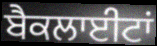
ਬੈਕਲਾਈਟਾਂ